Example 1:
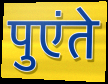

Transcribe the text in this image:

पुएंते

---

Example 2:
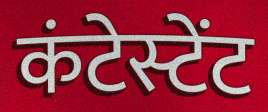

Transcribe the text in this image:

कंटेस्‍टेंट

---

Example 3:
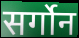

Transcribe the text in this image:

सर्गोन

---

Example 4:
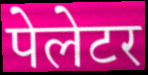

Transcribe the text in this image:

पेलेटर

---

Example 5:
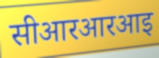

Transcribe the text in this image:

सीआरआरआइ